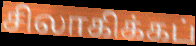
சிலாகிக்கப்